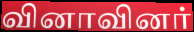
வினாவினர்